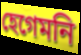
হেগেমনি